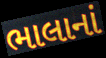
ભાલાનાં